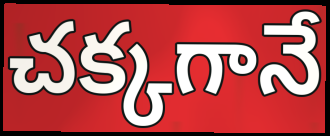
చక్కగానే